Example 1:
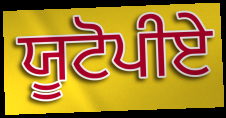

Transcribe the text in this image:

ਯੂਟੋਪੀਏ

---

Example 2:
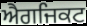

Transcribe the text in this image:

ਐਗਜਿਕਟ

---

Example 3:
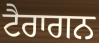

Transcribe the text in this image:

ਟੈਰਾਗਨ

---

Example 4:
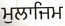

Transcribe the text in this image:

ਮੁਲਾਜਿਮ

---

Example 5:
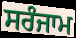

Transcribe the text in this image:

ਸਰੰਜਾਮ